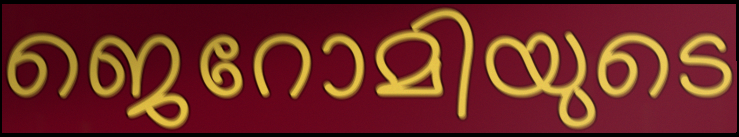
ജെറോമിയുടെ